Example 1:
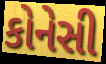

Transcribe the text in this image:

કોનેસી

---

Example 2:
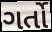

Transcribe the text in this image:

ગર્તો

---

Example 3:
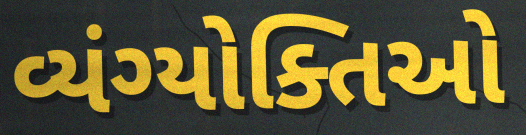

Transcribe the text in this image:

વ્યંગ્યોક્તિઓ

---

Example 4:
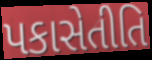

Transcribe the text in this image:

પકાસેતીતિ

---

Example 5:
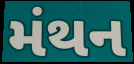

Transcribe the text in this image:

મંથન